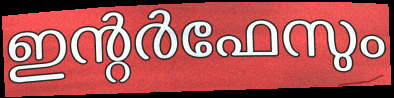
ഇന്റർഫേസും